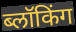
ब्लॉकिंग